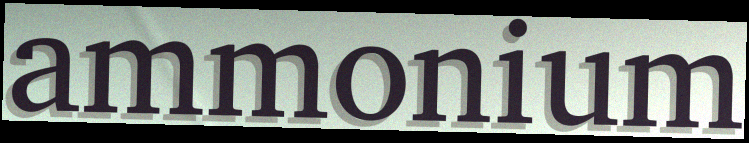
ammonium